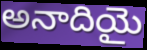
అనాదియై